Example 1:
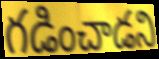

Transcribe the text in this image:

గడించాడని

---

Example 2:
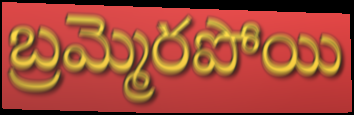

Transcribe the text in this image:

బ్రమ్మెరపోయి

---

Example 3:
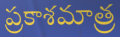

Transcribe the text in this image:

ప్రకాశమాత్ర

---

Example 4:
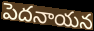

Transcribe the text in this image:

పెదనాయన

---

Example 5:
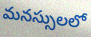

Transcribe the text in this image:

మనస్సులలో